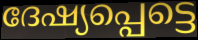
ദേഷ്യപ്പെട്ടെ